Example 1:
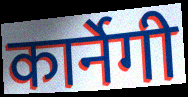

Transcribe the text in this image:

कार्नेगी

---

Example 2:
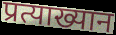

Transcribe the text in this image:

प्रत्याख्यान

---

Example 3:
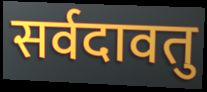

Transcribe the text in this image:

सर्वदावतु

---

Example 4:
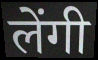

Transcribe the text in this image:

लेंगी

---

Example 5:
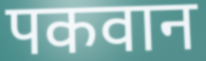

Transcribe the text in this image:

पकवान